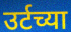
उर्टच्या